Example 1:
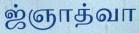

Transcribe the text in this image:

ஜ்ஞாத்வா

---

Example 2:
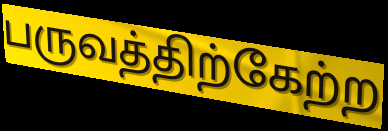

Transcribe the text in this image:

பருவத்திற்கேற்ற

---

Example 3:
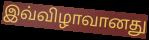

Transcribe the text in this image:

இவ்விழாவானது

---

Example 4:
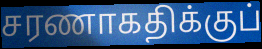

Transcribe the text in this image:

சரணாகதிக்குப்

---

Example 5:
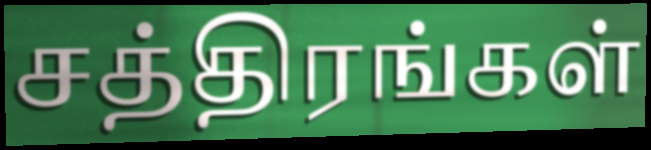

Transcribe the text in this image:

சத்திரங்கள்